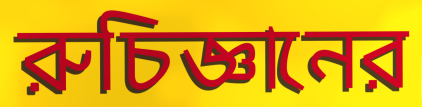
রুচিজ্ঞানের